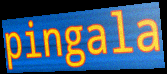
pingala